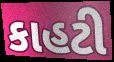
કાહટી